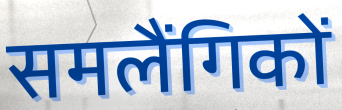
समलैंगिकों